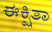
ಈಕ್ಷಿತಾ